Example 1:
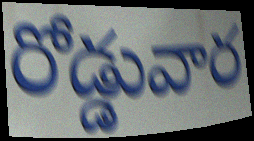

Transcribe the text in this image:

రోడ్డువార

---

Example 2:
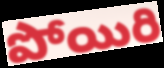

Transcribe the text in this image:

పోయిరి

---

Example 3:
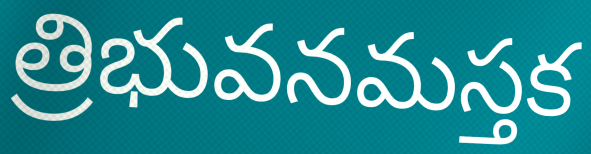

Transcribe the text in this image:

త్రిభువనమస్తక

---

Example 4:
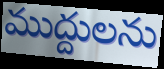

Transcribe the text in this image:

ముద్దులను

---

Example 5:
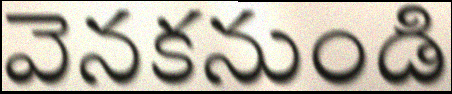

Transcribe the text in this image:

వెనకనుండి